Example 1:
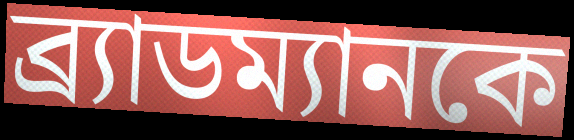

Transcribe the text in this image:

ব্র্যাডম্যানকে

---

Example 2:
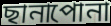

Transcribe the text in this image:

ছানাপোনা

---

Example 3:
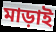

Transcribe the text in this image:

মাড়াই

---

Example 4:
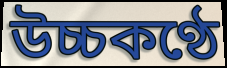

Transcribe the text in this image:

উচ্চকণ্ঠে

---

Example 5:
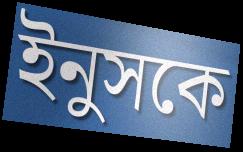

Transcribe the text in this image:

ইনুসকে